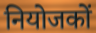
नियोजकों